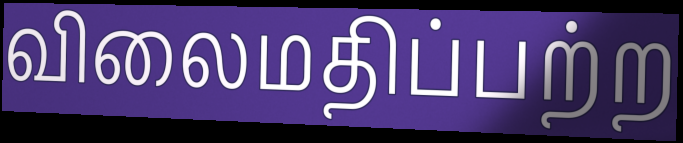
விலைமதிப்பற்ற